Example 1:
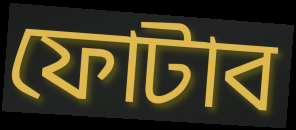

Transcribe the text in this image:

ফোটাব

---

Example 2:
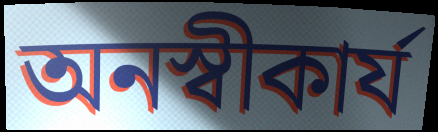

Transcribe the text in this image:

অনস্বীকার্য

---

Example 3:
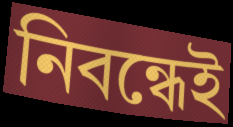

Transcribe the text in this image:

নিবন্ধেই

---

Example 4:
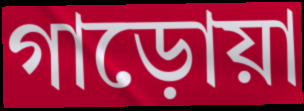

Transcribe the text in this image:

গাড়োয়া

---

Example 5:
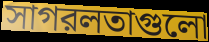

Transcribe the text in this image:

সাগরলতাগুলো